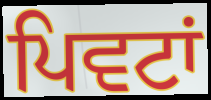
ਪਿਵਟਾਂ